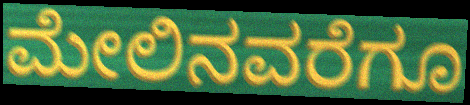
ಮೇಲಿನವರೆಗೂ